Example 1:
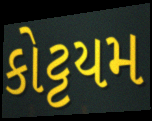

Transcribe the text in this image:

કોટ્ટયમ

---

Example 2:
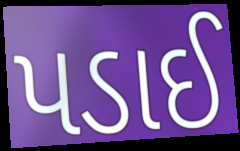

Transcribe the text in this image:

પડાઈ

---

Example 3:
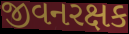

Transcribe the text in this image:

જીવનરક્ષક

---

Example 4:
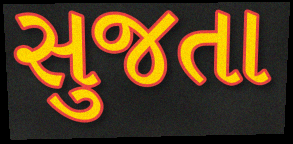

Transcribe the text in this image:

સુજતા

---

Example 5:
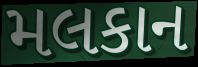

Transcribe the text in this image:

મલકાન